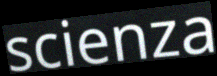
scienza